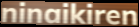
ninaikiren